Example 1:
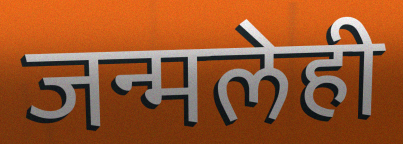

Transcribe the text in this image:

जन्मलेही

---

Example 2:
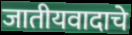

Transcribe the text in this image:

जातीयवादाचे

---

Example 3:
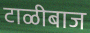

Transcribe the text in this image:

टाळीबाज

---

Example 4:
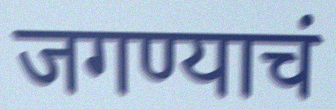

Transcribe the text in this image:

जगण्याचं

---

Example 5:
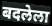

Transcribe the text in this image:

बदलेला